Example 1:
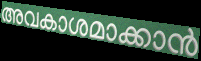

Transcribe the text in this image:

അവകാശമാക്കാൻ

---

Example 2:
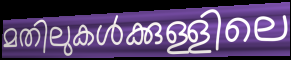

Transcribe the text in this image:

മതിലുകൾക്കുള്ളിലെ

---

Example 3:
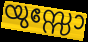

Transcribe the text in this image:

യുസ്സോ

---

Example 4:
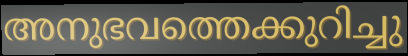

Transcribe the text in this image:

അനുഭവത്തെക്കുറിച്ചു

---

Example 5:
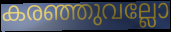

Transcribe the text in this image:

കരഞ്ഞുവല്ലോ